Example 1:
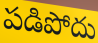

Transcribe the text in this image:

పడిపోదు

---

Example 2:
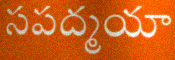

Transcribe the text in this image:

సపద్మయా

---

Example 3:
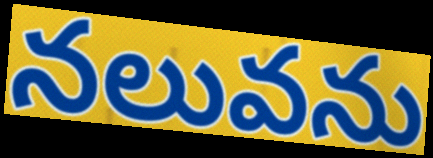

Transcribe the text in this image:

నలువను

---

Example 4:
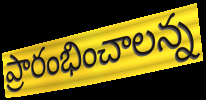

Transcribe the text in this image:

ప్రారంభించాలన్న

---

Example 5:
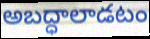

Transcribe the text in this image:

అబద్ధాలాడటం